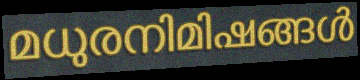
മധുരനിമിഷങ്ങൾ